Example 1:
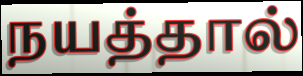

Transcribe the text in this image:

நயத்தால்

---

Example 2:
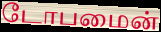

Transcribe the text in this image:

டோபமைன்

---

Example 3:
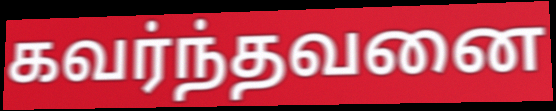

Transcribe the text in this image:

கவர்ந்தவனை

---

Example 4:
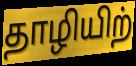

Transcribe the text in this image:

தாழியிற்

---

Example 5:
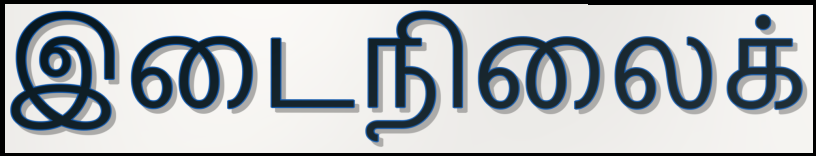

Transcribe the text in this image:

இடைநிலைக்